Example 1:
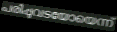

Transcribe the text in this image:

പരിപ്പുവടയോയെന്ന്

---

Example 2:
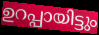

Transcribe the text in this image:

ഉറപ്പായിട്ടും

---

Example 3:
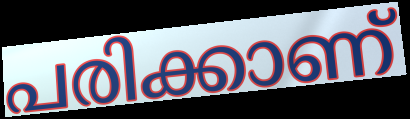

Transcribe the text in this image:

പരിക്കാണ്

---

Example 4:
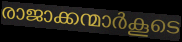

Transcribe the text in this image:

രാജാക്കന്മാർകൂടെ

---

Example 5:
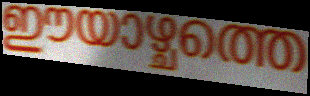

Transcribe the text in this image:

ഈയാഴ്ചത്തെ